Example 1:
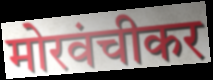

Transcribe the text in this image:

मोरवंचीकर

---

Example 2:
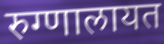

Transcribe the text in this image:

रुग्णालायत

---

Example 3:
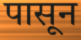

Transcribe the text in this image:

पासून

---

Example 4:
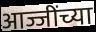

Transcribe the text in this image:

आज्जींच्या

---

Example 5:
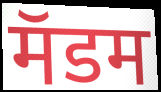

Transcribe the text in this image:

मॅडम